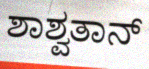
ಶಾಶ್ವತಾನ್